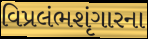
વિપ્રલંભશૃંગારના